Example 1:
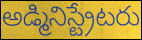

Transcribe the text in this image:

అడ్మినిస్ట్రేటరు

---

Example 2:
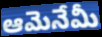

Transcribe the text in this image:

ఆమెనేమీ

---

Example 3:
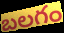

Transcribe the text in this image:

బలగం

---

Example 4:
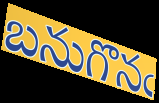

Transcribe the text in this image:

బనుగొనఁ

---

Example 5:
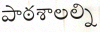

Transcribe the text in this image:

పాఠశాలల్ని